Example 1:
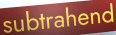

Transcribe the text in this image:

subtrahend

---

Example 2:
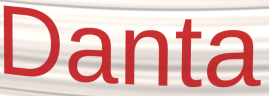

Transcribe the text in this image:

Danta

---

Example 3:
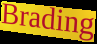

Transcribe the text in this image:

Brading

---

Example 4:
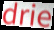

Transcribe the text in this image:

drie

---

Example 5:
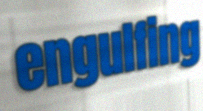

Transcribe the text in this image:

engulfing